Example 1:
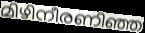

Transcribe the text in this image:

മിഴിനീരണിഞ്ഞ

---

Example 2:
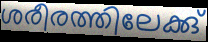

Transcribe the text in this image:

ശരീരത്തിലേക്കു്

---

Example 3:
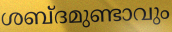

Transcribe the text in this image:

ശബ്ദമുണ്ടാവും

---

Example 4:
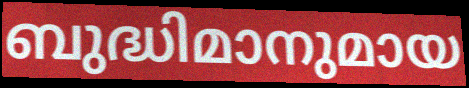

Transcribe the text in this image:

ബുദ്ധിമാനുമായ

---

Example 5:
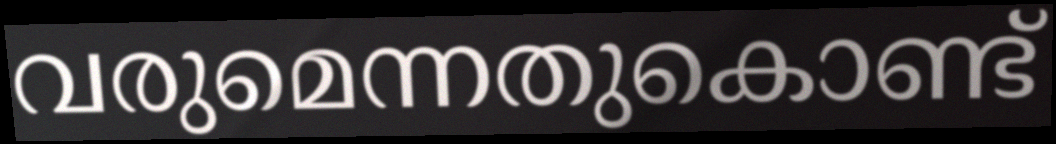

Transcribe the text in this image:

വരുമെന്നതുകൊണ്ട്